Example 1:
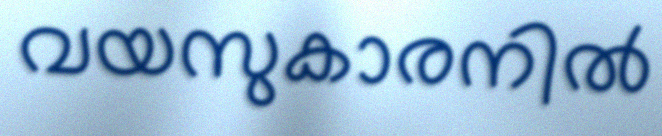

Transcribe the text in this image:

വയസുകാരനിൽ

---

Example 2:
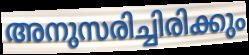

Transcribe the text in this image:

അനുസരിച്ചിരിക്കും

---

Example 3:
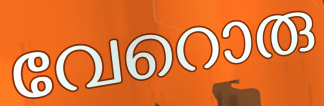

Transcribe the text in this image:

വേറൊരു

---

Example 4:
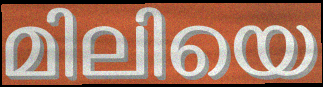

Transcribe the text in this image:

മിലിയെ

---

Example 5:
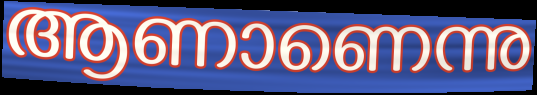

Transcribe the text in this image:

ആണാണെന്നു